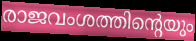
രാജവംശത്തിന്റെയും